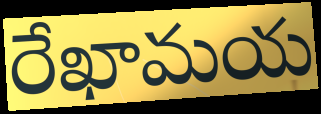
రేఖామయ